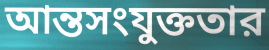
আন্তসংযুক্ততার